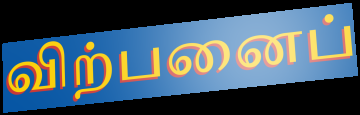
விற்பனைப்